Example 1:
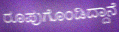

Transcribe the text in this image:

ರೂಪುಗೊಂಡಿದ್ದಾನೆ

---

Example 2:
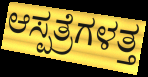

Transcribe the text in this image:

ಆಸ್ಪತ್ರೆಗಳತ್ತ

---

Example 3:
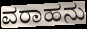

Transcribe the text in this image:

ವರಾಹನು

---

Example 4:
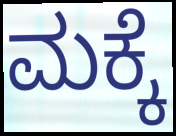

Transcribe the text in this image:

ಮಕ್ಕೆ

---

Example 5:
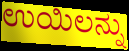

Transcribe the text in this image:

ಉಯಿಲನ್ನು